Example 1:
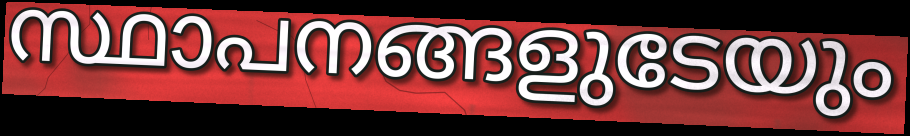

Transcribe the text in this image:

സ്ഥാപനങ്ങളുടേയും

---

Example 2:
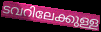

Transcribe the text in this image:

ടവറിലേക്കുള്ള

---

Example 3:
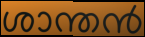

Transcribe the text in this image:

ശാന്തൻ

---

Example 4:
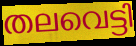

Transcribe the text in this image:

തലവെട്ടി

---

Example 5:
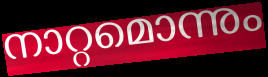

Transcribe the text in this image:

നാറ്റമൊന്നും